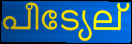
പീട്യേല്